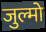
जुल्मो